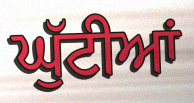
ਘੁੱਟੀਆਂ